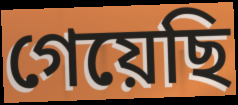
গেয়েছি